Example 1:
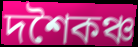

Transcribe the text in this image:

দশৈকঞ্চ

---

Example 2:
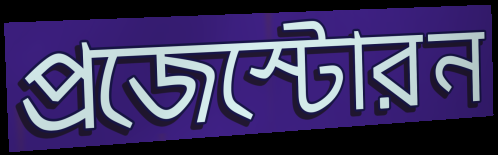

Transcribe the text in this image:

প্রজেস্টোরন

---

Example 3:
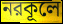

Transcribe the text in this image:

নরকূলে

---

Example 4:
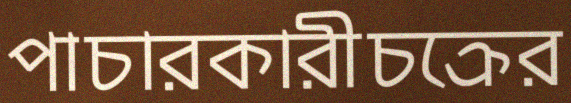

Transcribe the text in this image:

পাচারকারীচক্রের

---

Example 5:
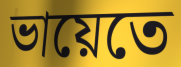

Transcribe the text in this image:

ভায়েতে